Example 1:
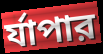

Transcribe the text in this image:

র্যাপার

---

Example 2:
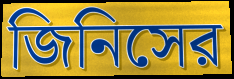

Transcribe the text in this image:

জিনিসের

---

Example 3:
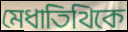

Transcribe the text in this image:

মেধাতিথিকে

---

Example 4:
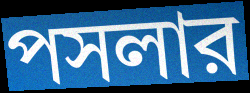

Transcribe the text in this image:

পসলার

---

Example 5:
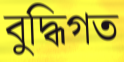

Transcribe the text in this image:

বুদ্ধিগত